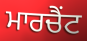
ਮਾਰਚੈਂਟ